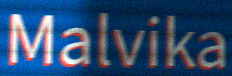
Malvika